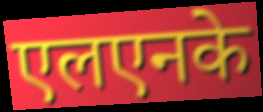
एलएनके